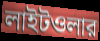
লাইটওলার